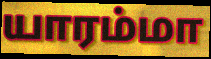
யாரம்மா